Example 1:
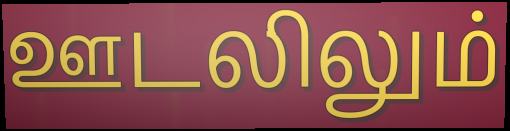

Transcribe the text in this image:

ஊடலிலும்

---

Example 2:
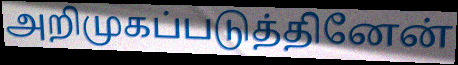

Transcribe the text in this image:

அறிமுகப்படுத்தினேன்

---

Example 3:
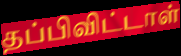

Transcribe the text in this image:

தப்பிவிட்டாள்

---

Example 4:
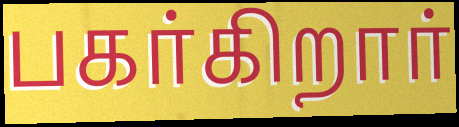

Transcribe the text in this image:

பகர்கிறார்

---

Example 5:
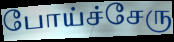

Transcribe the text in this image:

போய்ச்சேரு